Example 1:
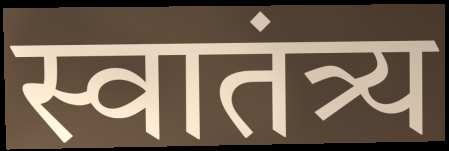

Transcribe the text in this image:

स्‍वातंत्र्य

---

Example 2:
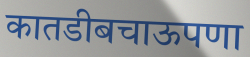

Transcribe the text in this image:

कातडीबचाऊपणा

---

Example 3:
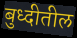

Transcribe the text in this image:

बुध्दीतील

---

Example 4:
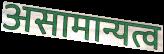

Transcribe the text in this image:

असामान्यत्व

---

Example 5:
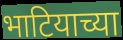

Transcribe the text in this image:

भाटियाच्या